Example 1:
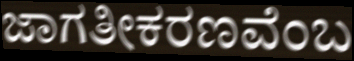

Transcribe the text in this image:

ಜಾಗತೀಕರಣವೆಂಬ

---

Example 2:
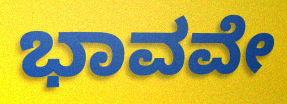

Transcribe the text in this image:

ಭಾವವೇ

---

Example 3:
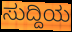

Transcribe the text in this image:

ಸುದ್ದಿಯ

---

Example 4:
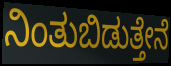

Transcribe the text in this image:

ನಿಂತುಬಿಡುತ್ತೇನೆ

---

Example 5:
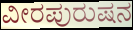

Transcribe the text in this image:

ವೀರಪುರುಷನ